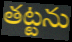
తట్టను